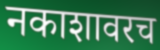
नकाशावरच